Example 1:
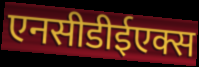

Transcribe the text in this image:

एनसीडीईएक्स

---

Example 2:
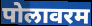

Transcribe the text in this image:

पोलावरम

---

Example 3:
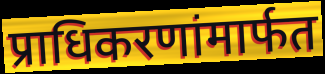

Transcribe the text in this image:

प्राधिकरणांमार्फत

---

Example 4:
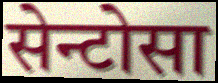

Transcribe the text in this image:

सेन्टोसा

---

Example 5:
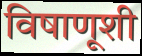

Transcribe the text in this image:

विषाणूशी